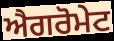
ਐਗਰੋਮੇਟ